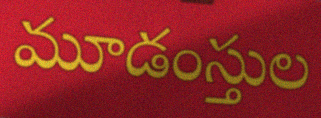
మూడంస్తుల